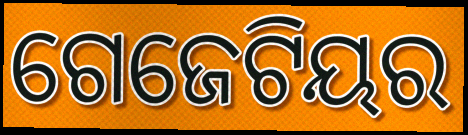
ଗେଜେଟିୟର